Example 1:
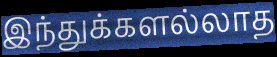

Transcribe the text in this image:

இந்துக்களல்லாத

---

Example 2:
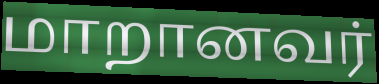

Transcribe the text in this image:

மாறானவர்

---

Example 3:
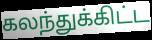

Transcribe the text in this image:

கலந்துக்கிட்ட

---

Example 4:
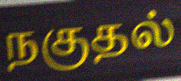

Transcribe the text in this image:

நகுதல்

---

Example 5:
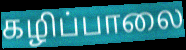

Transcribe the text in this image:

கழிப்பாலை